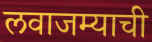
लवाजम्याची